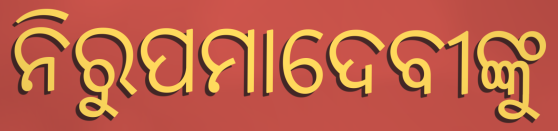
ନିରୁପମାଦେବୀଙ୍କୁ